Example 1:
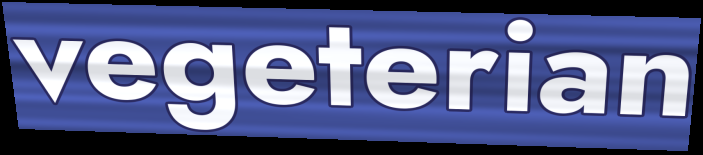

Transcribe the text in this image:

vegeterian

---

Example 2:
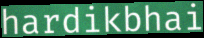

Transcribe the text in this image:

hardikbhai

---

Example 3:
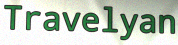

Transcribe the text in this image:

Travelyan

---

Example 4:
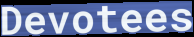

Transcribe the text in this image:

Devotees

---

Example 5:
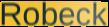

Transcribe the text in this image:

Robeck